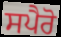
ਸਪੈਰੋ